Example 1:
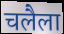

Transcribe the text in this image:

चलैला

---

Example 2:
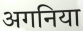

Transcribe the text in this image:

अगनिया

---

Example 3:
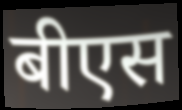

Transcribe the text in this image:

बीएस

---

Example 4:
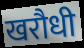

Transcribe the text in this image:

खरौधी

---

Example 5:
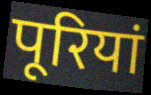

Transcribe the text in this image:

पूरियां